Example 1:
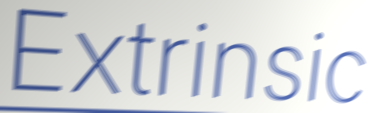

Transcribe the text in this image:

Extrinsic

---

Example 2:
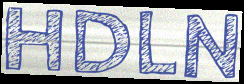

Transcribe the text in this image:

HDLN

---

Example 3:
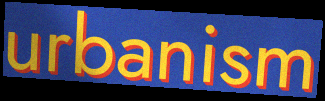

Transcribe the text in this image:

urbanism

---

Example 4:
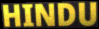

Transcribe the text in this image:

HINDU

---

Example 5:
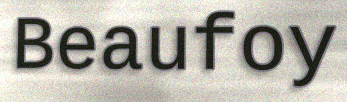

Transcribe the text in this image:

Beaufoy